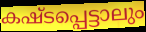
കഷ്ടപ്പെട്ടാലും